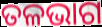
ତଳଭାଗ